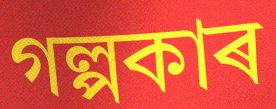
গল্পকাৰ